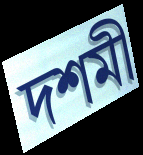
দশমী